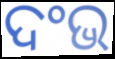
ଦଂଭ